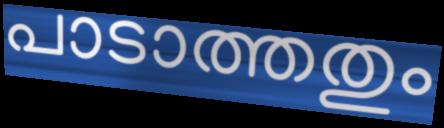
പാടാത്തതും